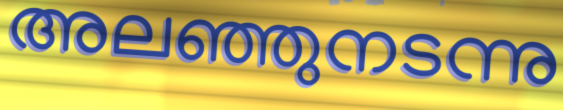
അലഞ്ഞുനടന്നു